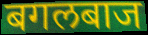
बगलबाज